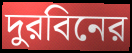
দুরবিনের